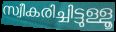
സ്വീകരിച്ചിട്ടുള്ളൂ